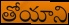
తోయాని